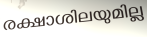
രക്ഷാശിലയുമില്ല